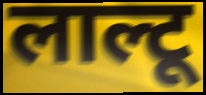
लाल्टू